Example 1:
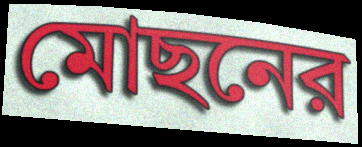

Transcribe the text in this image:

মোছনের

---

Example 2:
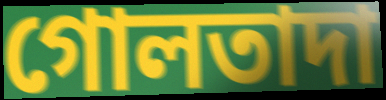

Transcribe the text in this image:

গোলতাদা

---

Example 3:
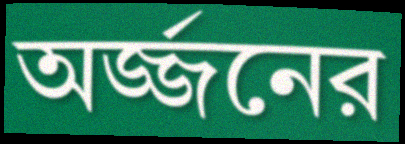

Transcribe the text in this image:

অর্জ্জনের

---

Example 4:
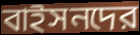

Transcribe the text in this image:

বাইসনদের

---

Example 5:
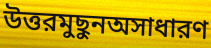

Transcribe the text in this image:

উত্তরমুছুনঅসাধারণ